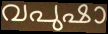
വപുഷാ